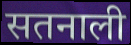
सतनाली